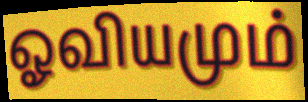
ஓவியமும்